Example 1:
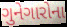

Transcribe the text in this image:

ગુનેગારોના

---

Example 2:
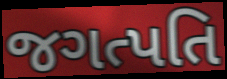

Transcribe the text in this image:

જગત્પતિ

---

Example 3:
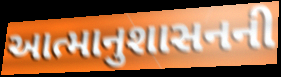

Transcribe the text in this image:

આત્માનુશાસનની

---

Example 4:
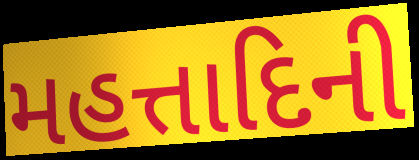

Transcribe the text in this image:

મહત્તાદિની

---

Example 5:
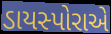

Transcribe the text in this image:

ડાયસ્પોરાએ